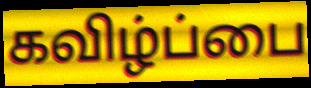
கவிழ்ப்பை